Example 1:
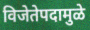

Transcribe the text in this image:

विजेतेपदामुळे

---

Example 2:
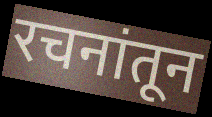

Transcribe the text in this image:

रचनांतून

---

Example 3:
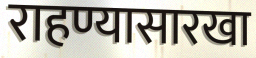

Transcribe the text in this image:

राहण्यासारखा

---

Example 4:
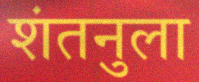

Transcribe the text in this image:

शंतनुला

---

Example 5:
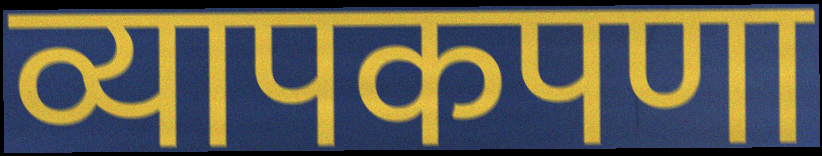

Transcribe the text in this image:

व्यापकपणा